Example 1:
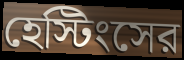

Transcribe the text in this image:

হেস্টিংসের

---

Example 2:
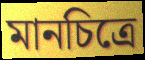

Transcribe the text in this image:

মানচিত্রে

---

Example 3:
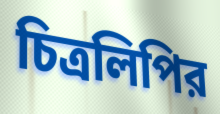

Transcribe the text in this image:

চিত্রলিপির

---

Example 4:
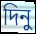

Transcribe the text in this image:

দিনু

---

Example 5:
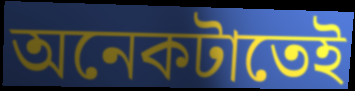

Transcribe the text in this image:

অনেকটাতেই